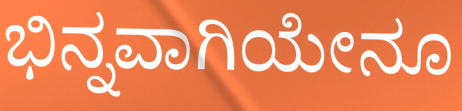
ಭಿನ್ನವಾಗಿಯೇನೂ